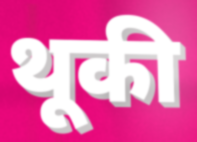
थूकी